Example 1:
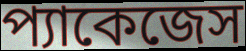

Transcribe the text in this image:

প্যাকেজেস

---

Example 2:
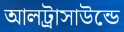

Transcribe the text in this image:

আলট্রাসাউন্ডে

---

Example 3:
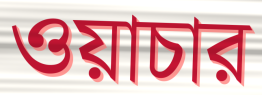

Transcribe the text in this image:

ওয়াচার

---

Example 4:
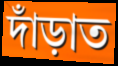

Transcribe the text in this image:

দাঁড়াত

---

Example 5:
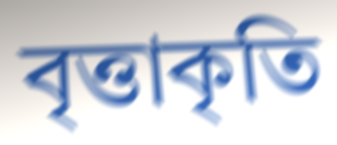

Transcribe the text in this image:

বৃত্তাকৃতি